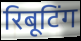
रिबूटिंग